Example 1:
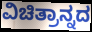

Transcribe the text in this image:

ವಿಚಿತ್ರಾನ್ನದ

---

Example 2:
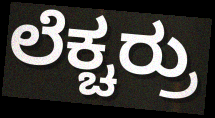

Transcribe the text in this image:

ಲೆಕ್ಚರ್ರು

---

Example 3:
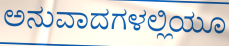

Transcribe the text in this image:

ಅನುವಾದಗಳಲ್ಲಿಯೂ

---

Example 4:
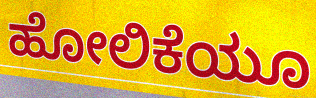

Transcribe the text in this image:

ಹೋಲಿಕೆಯೂ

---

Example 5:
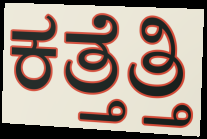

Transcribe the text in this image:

ಕತ್ತೆತ್ತಿ